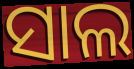
ସାଲ